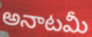
అనాటమీ